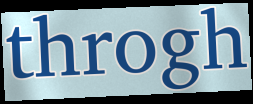
throgh